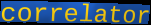
correlator